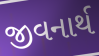
જીવનાર્થ